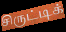
சிருட்டிக்